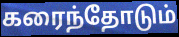
கரைந்தோடும்